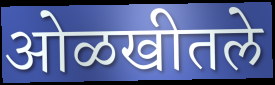
ओळखीतले